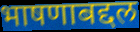
भाषणाबद्दल